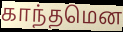
காந்தமென